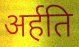
अर्हति